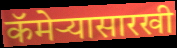
कॅमेऱ्यासारखी